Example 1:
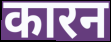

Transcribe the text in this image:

कारन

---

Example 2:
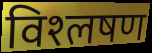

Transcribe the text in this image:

विश्लषण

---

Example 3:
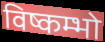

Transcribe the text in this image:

विष्कम्भो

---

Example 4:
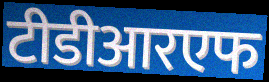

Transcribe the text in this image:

टीडीआरएफ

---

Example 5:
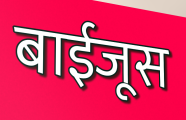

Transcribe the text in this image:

बाईजूस